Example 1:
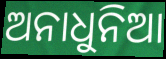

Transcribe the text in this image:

ଅନାଧୁନିଆ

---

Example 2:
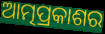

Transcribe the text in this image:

ଆତ୍ମପ୍ରକାଶର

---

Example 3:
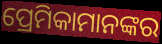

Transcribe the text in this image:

ପ୍ରେମିକାମାନଙ୍କର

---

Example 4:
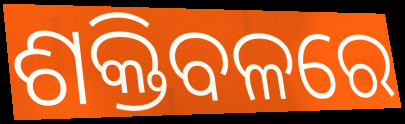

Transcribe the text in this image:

ଶକ୍ତିବଳରେ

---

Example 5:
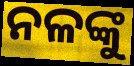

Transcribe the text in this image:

ନଳଙ୍କୁ